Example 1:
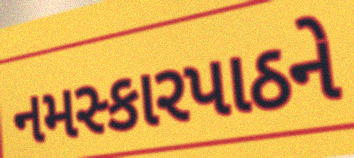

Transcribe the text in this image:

નમસ્કારપાઠને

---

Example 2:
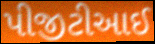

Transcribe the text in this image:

પીજીટીઆઈ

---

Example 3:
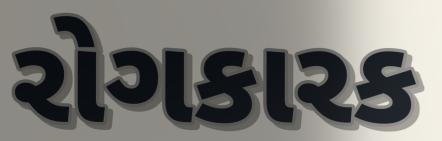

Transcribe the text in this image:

રોગકારક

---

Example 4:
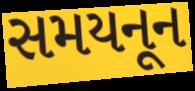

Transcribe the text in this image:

સમયનૂન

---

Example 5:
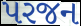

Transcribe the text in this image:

પરજન